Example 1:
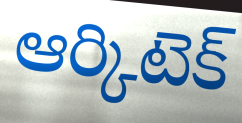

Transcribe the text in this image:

ఆర్కిటెక్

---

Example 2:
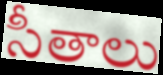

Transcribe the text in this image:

సీతాలు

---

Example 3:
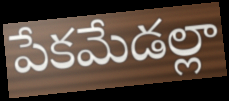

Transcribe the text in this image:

పేకమేడల్లా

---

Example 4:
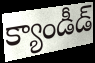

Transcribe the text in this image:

క్యాండీడ్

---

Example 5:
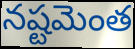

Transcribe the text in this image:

నష్టమెంత